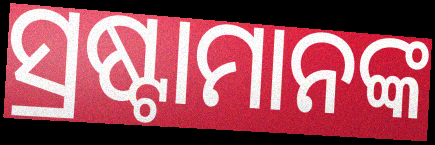
ସ୍ରଷ୍ଟାମାନଙ୍କ